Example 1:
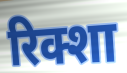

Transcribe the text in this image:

रिक्शा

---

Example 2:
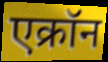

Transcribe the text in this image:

एक्रॉन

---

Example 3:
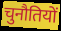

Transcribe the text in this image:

चुनौतियों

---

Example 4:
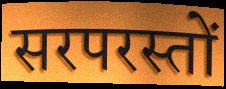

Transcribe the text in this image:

सरपरस्तों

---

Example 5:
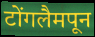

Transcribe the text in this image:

टोंगलैमपून